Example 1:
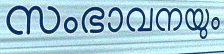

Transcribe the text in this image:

സംഭാവനയും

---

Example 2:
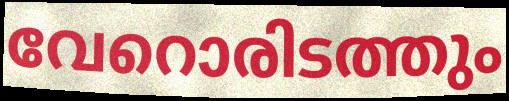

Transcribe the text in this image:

വേറൊരിടത്തും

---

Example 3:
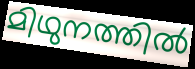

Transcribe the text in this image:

മിഥുനത്തിൽ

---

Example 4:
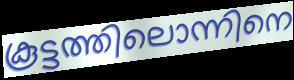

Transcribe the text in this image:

കൂട്ടത്തിലൊന്നിനെ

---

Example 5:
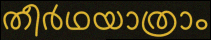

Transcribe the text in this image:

തീർഥയാത്രാം